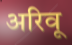
अरिवू